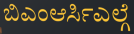
ಬಿಎಂಆರ್ಸಿಎಲ್ಗೆ